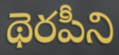
థెరపీని